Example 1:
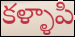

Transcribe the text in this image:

కళ్ళాపి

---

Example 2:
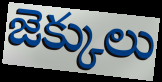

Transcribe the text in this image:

జెక్కులు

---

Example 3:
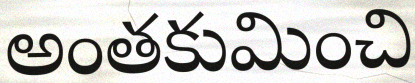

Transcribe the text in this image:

అంతకుమించి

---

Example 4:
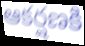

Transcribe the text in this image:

ఆకర్షణకి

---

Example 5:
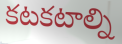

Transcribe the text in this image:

కటకటాల్ని